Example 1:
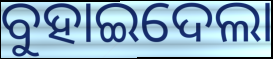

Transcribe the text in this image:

ବୁହାଇଦେଲା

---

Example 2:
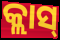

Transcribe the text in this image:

କ୍ଲାସ୍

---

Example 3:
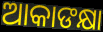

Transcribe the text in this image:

ଆକାଙକ୍ଷା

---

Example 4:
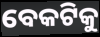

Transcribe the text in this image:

ବେକଟିକୁ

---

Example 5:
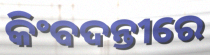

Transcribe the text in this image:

କିଂବଦନ୍ତୀରେ